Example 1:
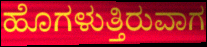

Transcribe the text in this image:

ಹೊಗಳುತ್ತಿರುವಾಗ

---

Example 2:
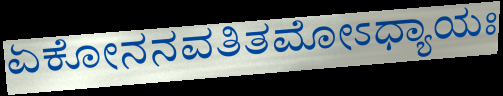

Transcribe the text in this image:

ಏಕೋನನವತಿತಮೋಽಧ್ಯಾಯಃ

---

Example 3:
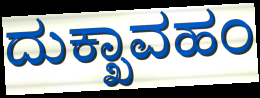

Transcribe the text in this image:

ದುಕ್ಖಾವಹಂ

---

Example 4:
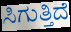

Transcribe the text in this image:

ಸಿಗುತ್ತಿದೆ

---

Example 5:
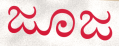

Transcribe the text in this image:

ಜೂಜ